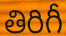
తిరిగీ